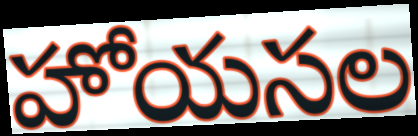
హోయసల